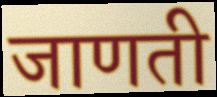
जाणती